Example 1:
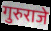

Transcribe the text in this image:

गुरुराजे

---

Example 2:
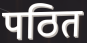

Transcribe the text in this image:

पठित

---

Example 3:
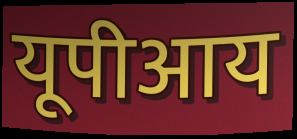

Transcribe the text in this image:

यूपीआय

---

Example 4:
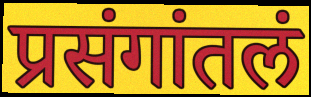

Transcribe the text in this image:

प्रसंगांतलं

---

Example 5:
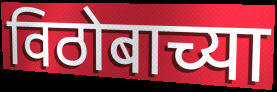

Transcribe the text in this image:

विठोबाच्या